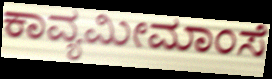
ಕಾವ್ಯಮೀಮಾಂಸೆ